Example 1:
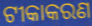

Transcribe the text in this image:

ଟୀକାକରଣ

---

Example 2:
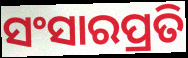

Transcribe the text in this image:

ସଂସାରପ୍ରତି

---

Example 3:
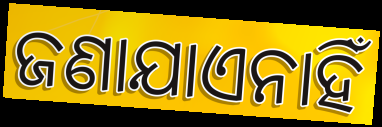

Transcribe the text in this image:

ଜଣାଯାଏନାହିଁ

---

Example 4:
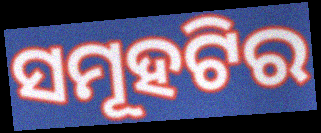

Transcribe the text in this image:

ସମୂହଟିର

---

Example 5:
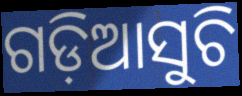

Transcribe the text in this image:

ଗଡ଼ିଆସୁଚି